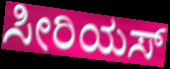
ಸೀರಿಯಸ್